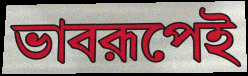
ভাবরূপেই